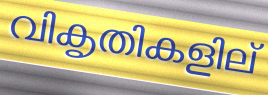
വികൃതികളില്